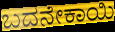
ಬದನೇಕಾಯಿ